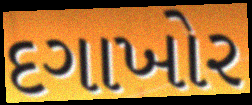
દગાખોર